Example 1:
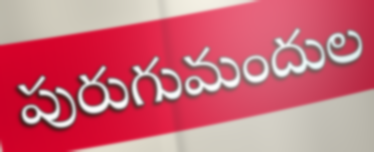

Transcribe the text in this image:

పురుగుమందుల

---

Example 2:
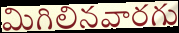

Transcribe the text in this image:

మిగిలినవారగు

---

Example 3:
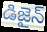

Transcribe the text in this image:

డిజైన్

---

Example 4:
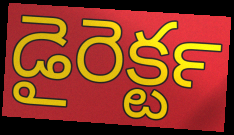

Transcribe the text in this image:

డైరెక్టర్‍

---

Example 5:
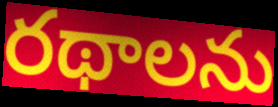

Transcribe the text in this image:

రథాలను